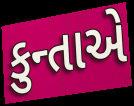
કુન્તાએ